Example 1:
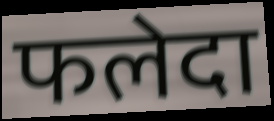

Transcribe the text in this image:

फलेदा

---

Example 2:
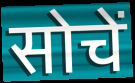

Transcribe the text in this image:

सोचें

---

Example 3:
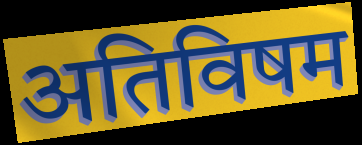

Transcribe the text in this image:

अतिविषम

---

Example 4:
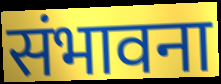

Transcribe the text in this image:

संभावना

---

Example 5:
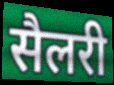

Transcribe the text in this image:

सैलरी